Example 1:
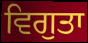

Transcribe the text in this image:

ਵਿਗੁਤਾ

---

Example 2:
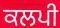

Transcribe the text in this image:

ਕਲਪੀ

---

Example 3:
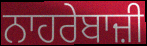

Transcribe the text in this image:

ਨਾਹਰੇਬਾਜ਼ੀ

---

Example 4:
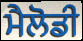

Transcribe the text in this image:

ਮੈਲੋਡੀ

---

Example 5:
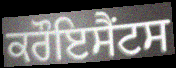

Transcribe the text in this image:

ਕਰੌਇਸੈਂਟਸ